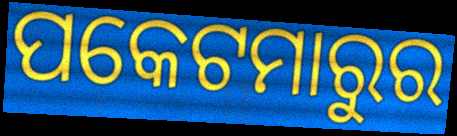
ପକେଟମାରୁର